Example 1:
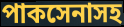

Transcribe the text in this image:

পাকসেনাসহ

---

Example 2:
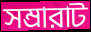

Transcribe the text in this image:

সম্রারাট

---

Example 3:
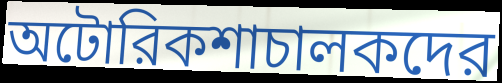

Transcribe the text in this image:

অটোরিকশাচালকদের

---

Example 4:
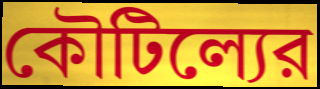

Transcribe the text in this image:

কৌটিল্যের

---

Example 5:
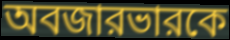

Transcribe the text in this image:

অবজারভারকে